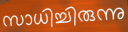
സാധിച്ചിരുന്നു